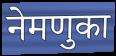
नेमणुका